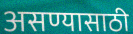
असण्यासाठी